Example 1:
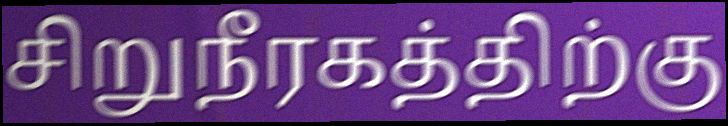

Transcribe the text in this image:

சிறுநீரகத்திற்கு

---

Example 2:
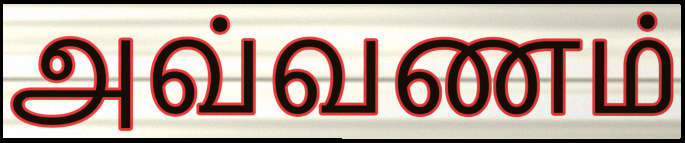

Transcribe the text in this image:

அவ்வணம்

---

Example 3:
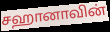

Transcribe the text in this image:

சஹானாவின்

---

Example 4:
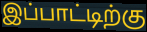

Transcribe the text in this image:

இப்பாட்டிற்கு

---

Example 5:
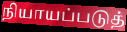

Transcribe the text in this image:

நியாயப்படுத்